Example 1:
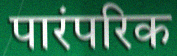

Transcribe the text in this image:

पारंपरिक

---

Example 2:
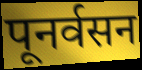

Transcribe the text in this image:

पूनर्वसन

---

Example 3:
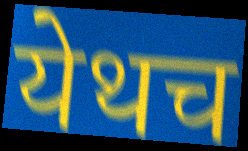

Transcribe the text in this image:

येथच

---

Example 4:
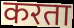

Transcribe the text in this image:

करता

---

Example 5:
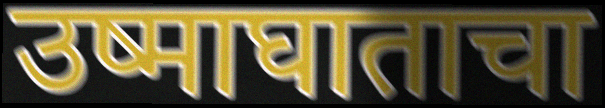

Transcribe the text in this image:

उष्माघाताचा